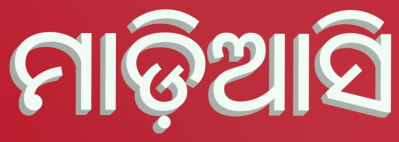
ମାଡ଼ିଆସି